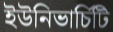
ইউনিভাৰ্চিটি